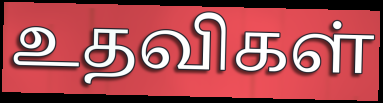
உதவிகள்